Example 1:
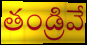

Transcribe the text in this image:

తండ్రివే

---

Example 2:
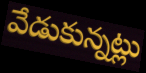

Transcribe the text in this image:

వేడుకున్నట్లు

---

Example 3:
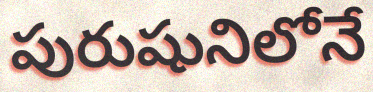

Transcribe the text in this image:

పురుషునిలోనే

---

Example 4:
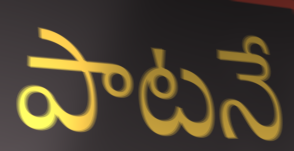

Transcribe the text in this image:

పాటనే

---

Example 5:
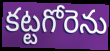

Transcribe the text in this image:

కట్టగోరెను